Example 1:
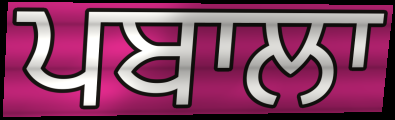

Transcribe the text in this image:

ਪਬਾਲਾ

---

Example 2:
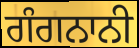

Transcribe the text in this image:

ਗੰਗਨਾਨੀ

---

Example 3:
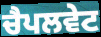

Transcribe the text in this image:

ਚੈਪਲਵੇਟ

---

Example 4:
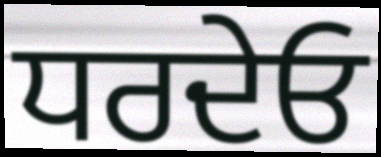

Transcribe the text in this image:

ਧਰਦੇਓ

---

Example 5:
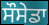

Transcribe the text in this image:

ਸੌਸੇਡਾ